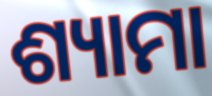
ଶ୍ୟାମା